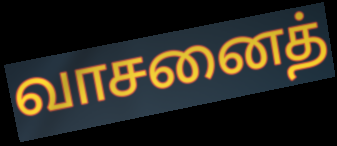
வாசனைத்